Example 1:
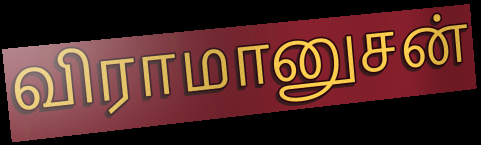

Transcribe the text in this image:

விராமானுசன்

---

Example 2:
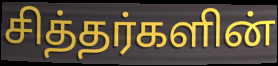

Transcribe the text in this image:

சித்தர்களின்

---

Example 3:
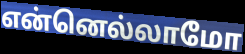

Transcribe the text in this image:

என்னெல்லாமோ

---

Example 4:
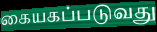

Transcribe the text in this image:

கையகப்படுவது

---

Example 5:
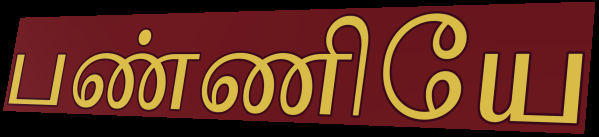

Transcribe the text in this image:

பண்ணியே